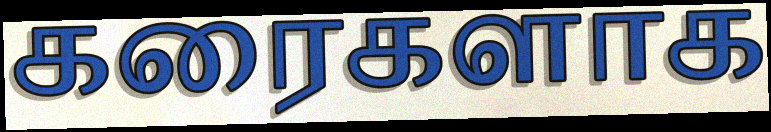
கரைகளாக